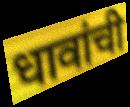
धावांची